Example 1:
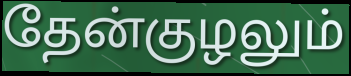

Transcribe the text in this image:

தேன்குழலும்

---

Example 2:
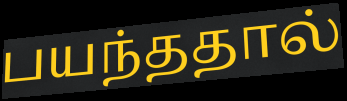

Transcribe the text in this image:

பயந்ததால்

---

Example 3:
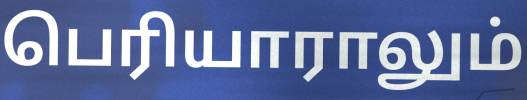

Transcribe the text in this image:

பெரியாராலும்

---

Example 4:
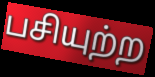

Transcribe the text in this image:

பசியுற்ற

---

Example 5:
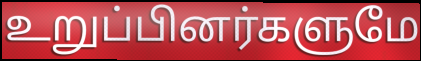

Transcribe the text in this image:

உறுப்பினர்களுமே